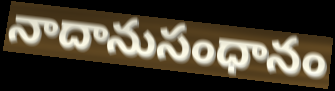
నాదానుసంధానం